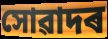
সোৱাদৰ